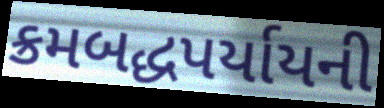
ક્રમબદ્ધપર્યાયની